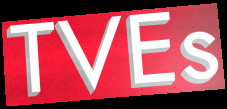
TVEs